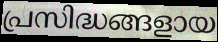
പ്രസിദ്ധങ്ങളായ